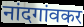
नांदगांवकर